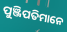
ପୁଞ୍ଜିପତିମାନେ